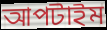
আপটাইম